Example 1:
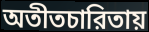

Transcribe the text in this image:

অতীতচারিতায়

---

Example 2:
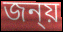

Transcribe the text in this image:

জন্য়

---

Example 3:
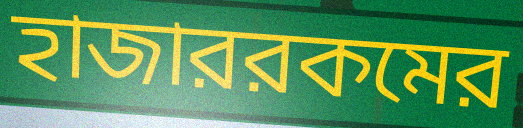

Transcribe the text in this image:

হাজাররকমের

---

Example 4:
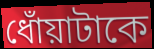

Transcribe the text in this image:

ধোঁয়াটাকে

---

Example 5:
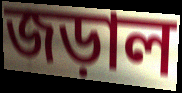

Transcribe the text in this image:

জড়াল